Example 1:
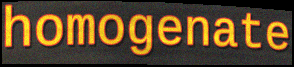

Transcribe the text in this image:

homogenate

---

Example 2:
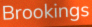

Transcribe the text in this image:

Brookings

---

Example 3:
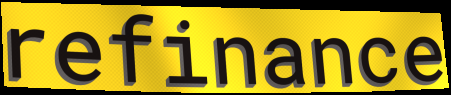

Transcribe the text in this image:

refinance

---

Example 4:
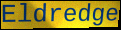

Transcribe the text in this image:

Eldredge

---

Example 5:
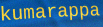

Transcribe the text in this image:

kumarappa